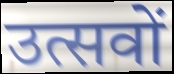
उत्सवों